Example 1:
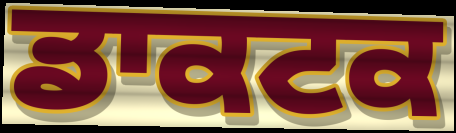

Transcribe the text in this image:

ਡਾਕਟਕ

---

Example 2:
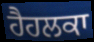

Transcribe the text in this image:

ਹੈਹਲਕਾ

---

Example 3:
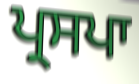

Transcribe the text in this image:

ਪ੍ਰਸਪਾ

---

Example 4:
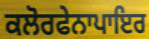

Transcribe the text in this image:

ਕਲੋਰਫੇਨਾਪਾਇਰ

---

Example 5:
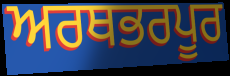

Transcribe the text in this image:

ਅਰਥਭਰਪੂਰ